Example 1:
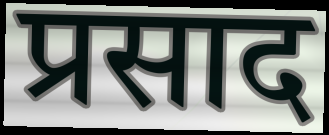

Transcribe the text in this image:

प्रसाद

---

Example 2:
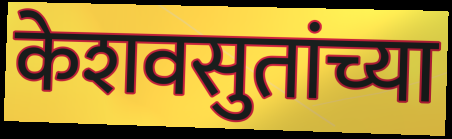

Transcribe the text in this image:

केशवसुतांच्या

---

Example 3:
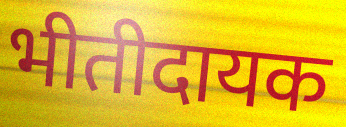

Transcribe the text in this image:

भीतीदायक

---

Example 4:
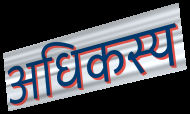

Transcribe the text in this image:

अधिकस्य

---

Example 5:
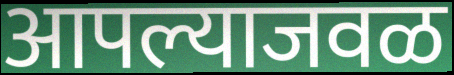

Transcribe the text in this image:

आपल्याजवळ